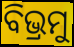
ବିଭ୍ରମୁ